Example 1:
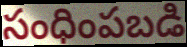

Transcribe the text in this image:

సంధింపబడి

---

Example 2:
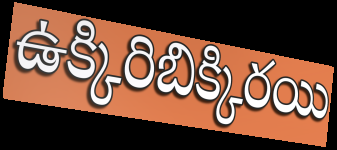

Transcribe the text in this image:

ఉక్కిరిబిక్కిరయి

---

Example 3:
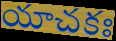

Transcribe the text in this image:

యాచకః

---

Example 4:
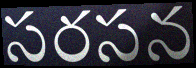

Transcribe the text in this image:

సరసన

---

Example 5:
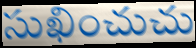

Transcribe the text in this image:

సుఖించుచు